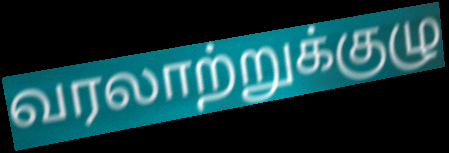
வரலாற்றுக்குழு